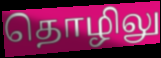
தொழிலு